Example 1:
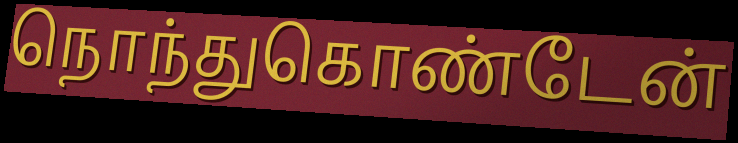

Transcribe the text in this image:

நொந்துகொண்டேன்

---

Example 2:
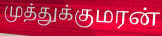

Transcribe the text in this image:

முத்துக்குமரன்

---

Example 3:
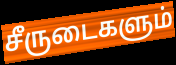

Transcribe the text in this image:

சீருடைகளும்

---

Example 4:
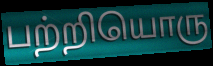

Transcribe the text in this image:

பற்றியொரு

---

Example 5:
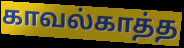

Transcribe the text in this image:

காவல்காத்த